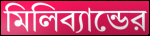
মিলিব্যান্ডের